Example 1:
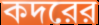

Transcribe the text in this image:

কদরের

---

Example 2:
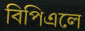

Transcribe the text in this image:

বিপিএলে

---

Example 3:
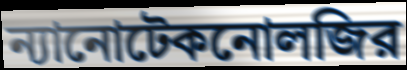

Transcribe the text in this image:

ন্যানোটেকনোলজির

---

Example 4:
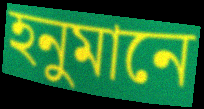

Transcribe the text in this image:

হনুমানে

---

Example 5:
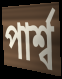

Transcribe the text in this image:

পার্শ্ব